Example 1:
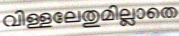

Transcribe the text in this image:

വിള്ളലേതുമില്ലാതെ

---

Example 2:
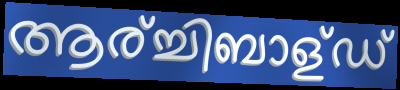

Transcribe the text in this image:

ആര്ച്ചിബാള്ഡ്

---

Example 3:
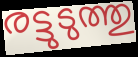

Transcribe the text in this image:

രട്ടുടുത്തു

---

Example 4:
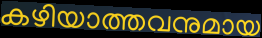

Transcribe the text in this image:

കഴിയാത്തവനുമായ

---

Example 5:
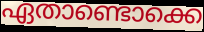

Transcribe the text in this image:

ഏതാണ്ടൊക്കെ